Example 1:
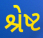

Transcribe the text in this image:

શ્રેષ્ટ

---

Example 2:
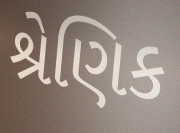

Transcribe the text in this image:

શ્રેણિક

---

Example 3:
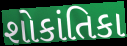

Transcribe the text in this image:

શોકાંતિકા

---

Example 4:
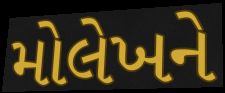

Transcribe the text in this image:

મોલેખને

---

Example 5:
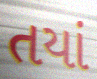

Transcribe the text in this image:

તયાં